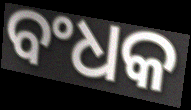
ବଂଧକ